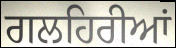
ਗਲਹਿਰੀਆਂ